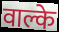
वाल्के